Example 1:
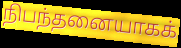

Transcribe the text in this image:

நிபந்தனையாகக்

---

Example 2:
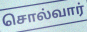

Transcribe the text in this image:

சொல்வார்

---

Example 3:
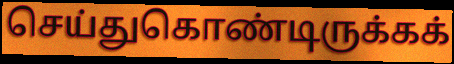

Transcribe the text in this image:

செய்துகொண்டிருக்கக்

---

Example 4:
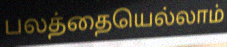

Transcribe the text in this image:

பலத்தையெல்லாம்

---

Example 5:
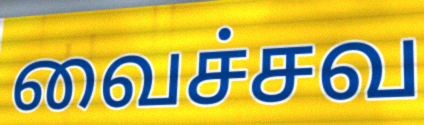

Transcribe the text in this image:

வைச்சவ